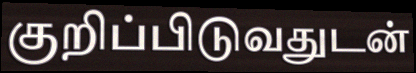
குறிப்பிடுவதுடன்